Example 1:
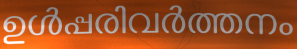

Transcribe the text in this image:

ഉൾപ്പരിവർത്തനം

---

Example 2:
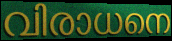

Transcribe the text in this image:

വിരാധനെ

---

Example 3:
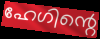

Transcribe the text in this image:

ഹേഗിന്റെ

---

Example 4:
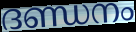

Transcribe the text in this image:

ദണ്ഡനം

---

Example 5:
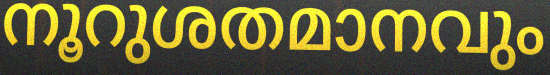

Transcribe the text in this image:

നൂറുശതമാനവും